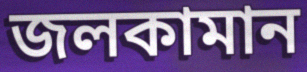
জলকামান